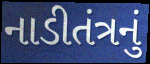
નાડીતંત્રનું